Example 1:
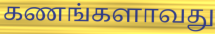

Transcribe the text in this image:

கணங்களாவது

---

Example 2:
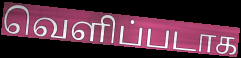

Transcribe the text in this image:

வெளிப்படாக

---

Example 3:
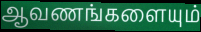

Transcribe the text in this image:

ஆவணங்களையும்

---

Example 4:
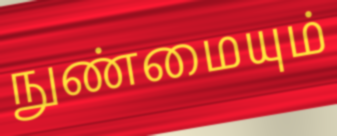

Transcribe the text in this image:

நுண்மையும்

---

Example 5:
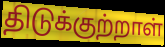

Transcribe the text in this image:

திடுக்குற்றாள்